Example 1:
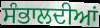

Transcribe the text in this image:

ਸੰਭਾਲਦੀਆਂ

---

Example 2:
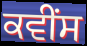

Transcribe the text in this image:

ਕਵੀਂਸ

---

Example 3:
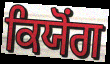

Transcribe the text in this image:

ਕਿਯੋਂਗ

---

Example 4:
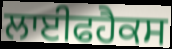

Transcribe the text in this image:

ਲਾਈਫਹੈਕਸ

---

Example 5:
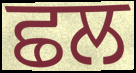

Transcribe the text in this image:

ਛਲ